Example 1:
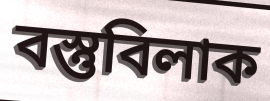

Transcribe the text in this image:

বস্তুবিলাক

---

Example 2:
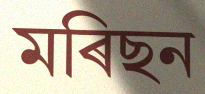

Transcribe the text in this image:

মৰিছন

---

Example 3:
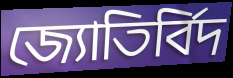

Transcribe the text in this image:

জ্যোতিৰ্বিদ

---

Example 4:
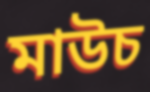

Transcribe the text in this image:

মাউচ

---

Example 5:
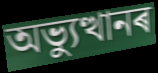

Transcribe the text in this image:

অভ্যুত্থানৰ